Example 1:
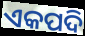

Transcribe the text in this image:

ଏକପଦି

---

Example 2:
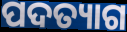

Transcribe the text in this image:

ପଦତ୍ୟାଗ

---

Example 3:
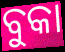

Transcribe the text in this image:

ବୁକା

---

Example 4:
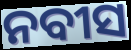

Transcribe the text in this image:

ନବୀସ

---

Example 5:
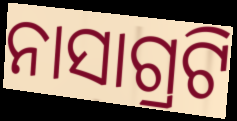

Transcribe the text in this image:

ନାସାଗ୍ରଟି